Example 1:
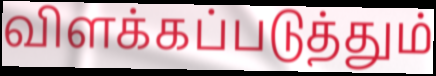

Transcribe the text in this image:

விளக்கப்படுத்தும்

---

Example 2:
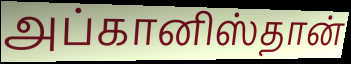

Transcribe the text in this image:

அப்கானிஸ்தான்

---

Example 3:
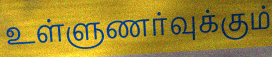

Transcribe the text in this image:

உள்ளுணர்வுக்கும்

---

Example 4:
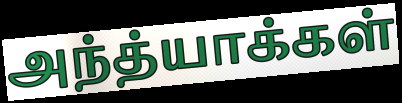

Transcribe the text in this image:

அந்த்யாக்கள்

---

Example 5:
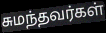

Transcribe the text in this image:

சுமந்தவர்கள்